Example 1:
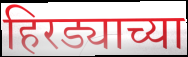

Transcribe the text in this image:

हिरड्याच्या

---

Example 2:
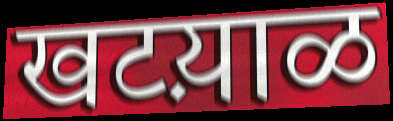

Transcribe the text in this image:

खटय़ाळ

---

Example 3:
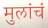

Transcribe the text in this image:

मुलांचं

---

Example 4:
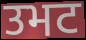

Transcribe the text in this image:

उभट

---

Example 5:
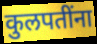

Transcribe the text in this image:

कुलपतींना